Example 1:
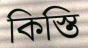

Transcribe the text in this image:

কিস্তি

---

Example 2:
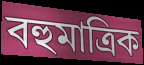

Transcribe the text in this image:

বহুমাত্ৰিক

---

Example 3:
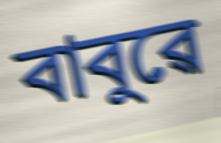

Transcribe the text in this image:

বাবুৱে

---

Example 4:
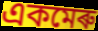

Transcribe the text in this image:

একমেৰু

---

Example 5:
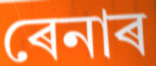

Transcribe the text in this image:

ৰেনাৰ